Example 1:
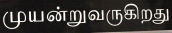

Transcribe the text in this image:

முயன்றுவருகிறது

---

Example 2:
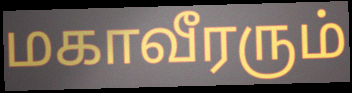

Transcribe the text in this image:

மகாவீரரும்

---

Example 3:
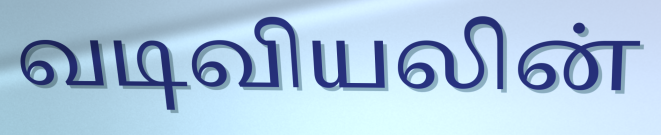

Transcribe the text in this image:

வடிவியலின்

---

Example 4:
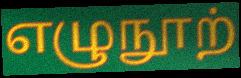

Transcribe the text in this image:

எழுநூற்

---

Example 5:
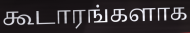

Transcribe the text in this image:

கூடாரங்களாக